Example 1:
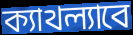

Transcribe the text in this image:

ক্যাথল্যাবে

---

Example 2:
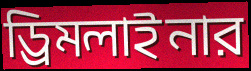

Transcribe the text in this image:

ড্রিমলাইনার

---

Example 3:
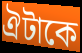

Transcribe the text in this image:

ঐটাকে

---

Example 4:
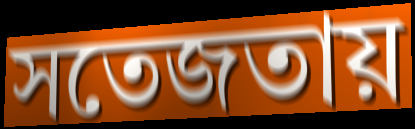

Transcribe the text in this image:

সতেজতায়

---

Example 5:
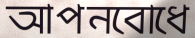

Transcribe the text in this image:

আপনবোধে